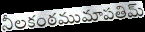
నీలకంఠముమాపతిమ్